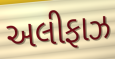
અલીફાઝ